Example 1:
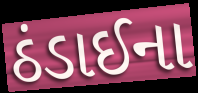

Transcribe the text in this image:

ઠંડાઈના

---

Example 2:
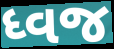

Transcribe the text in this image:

ધ્વજ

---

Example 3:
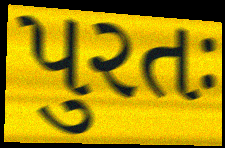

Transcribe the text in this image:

પુરતઃ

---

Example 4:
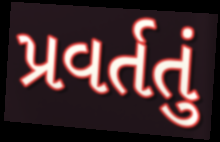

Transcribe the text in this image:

પ્રવર્તતું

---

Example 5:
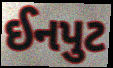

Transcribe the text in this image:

ઈનપુટ